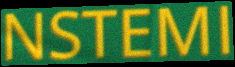
NSTEMI